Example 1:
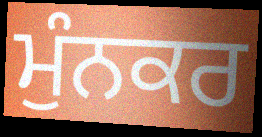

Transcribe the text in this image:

ਮੁੰਨਕਰ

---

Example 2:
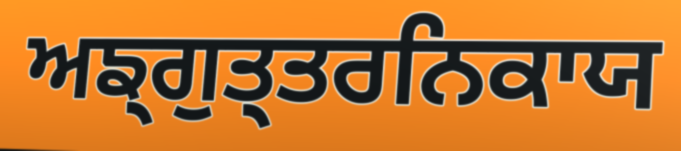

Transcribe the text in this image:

ਅਙ੍ਗੁਤ੍ਤਰਨਿਕਾਯ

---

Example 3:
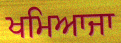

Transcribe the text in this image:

ਖਮਿਆਜਾ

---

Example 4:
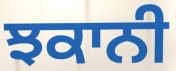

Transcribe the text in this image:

ਝਕਾਨੀ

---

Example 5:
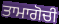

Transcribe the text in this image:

ਤਾਮਾਗੋਚੀ